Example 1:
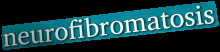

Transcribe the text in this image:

neurofibromatosis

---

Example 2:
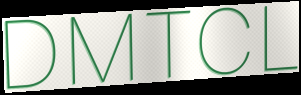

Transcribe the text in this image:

DMTCL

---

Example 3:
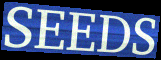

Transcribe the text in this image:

SEEDS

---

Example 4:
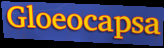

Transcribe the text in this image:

Gloeocapsa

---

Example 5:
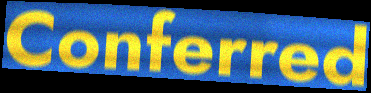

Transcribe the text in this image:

Conferred